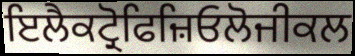
ਇਲੈਕਟ੍ਰੋਫਿਜ਼ਿਓਲੋਜੀਕਲ